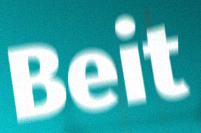
Beit